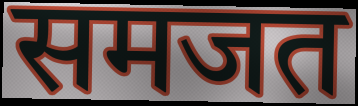
समजत